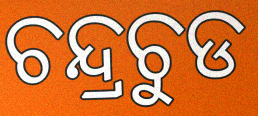
ଚନ୍ଦ୍ରଚୁଡ